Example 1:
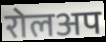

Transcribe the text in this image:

रोलअप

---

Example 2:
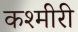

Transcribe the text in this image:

कश्मीरी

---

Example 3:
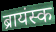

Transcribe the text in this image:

ब्रायंस्क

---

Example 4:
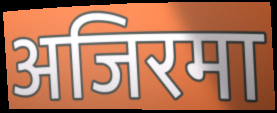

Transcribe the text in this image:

अजिरमा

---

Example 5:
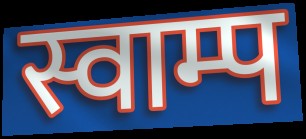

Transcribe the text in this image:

स्वाम्प